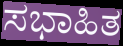
ಸಭಾಹಿತ